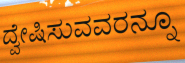
ದ್ವೇಷಿಸುವವರನ್ನೂ